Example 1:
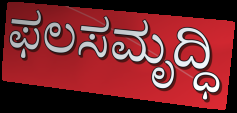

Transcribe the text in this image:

ಫಲಸಮೃದ್ಧಿ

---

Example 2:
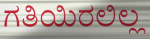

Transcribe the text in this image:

ಗತಿಯಿರಲಿಲ್ಲ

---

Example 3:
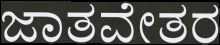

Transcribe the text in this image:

ಜಾತವೇತರ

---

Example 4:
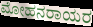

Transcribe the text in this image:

ಮೋಹನರಾಯರ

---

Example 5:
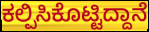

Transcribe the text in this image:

ಕಲ್ಪಿಸಿಕೊಟ್ಟಿದ್ದಾನೆ